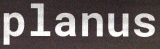
planus